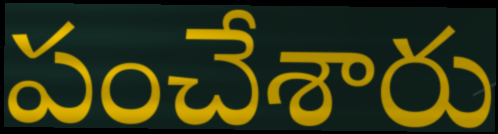
పంచేశారు